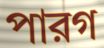
পারগ